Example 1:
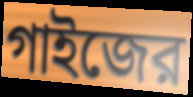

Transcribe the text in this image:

গাইজের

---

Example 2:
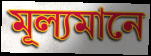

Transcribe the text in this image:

মূল্যমানে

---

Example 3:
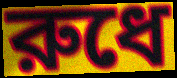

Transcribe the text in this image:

রুধে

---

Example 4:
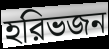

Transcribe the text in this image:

হরিভজন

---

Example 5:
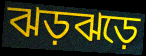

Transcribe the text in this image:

ঝড়ঝড়ে